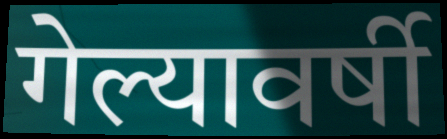
गेल्यावर्षी